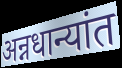
अन्नधान्यांत